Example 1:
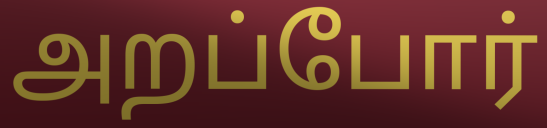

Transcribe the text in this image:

அறப்போர்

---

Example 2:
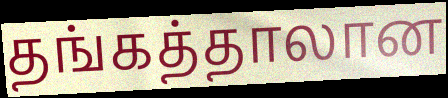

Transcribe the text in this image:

தங்கத்தாலான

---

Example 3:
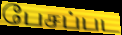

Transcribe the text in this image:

பேசப்பட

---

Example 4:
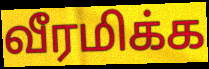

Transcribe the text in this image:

வீரமிக்க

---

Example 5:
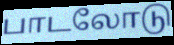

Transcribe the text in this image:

பாடலோடு